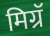
मिग्रॅ